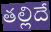
తల్లిదే